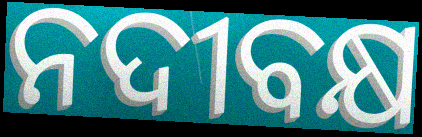
ନଦୀବକ୍ଷ